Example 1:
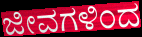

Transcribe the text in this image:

ಜೀವಗಳಿಂದ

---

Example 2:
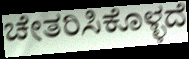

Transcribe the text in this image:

ಚೇತರಿಸಿಕೊಳ್ಳದೆ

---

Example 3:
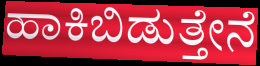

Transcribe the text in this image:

ಹಾಕಿಬಿಡುತ್ತೇನೆ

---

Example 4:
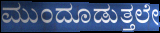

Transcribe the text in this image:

ಮುಂದೂಡುತ್ತಲೇ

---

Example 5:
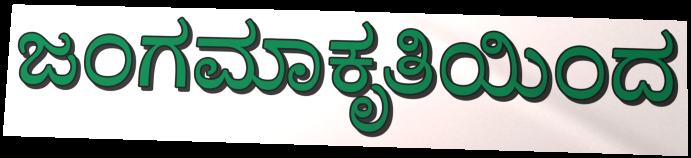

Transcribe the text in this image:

ಜಂಗಮಾಕೃತಿಯಿಂದ